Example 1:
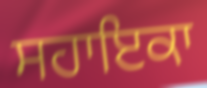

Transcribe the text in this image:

ਸਹਾਇਕਾ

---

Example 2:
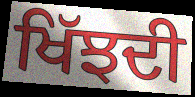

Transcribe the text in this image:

ਖਿੱਝਦੀ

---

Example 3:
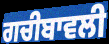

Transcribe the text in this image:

ਗਚੀਬਾਵਲੀ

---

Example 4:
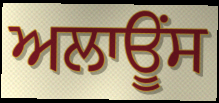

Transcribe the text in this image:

ਅਲਾਊੰਸ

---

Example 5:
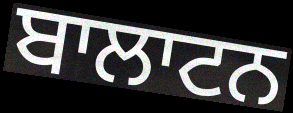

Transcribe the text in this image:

ਬਾਲਾਟਨ